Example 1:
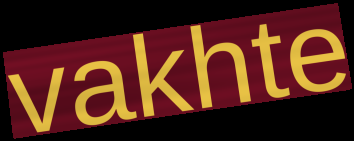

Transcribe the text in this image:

vakhte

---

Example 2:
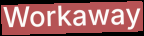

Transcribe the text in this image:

Workaway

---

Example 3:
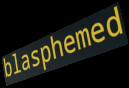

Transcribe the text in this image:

blasphemed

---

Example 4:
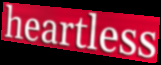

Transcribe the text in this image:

heartless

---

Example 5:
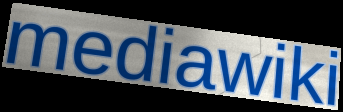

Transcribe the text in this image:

mediawiki